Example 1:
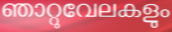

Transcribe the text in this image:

ഞാറ്റുവേലകളും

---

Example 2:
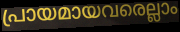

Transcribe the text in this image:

പ്രായമായവരെല്ലാം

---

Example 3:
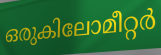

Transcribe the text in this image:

ഒരുകിലോമീറ്റർ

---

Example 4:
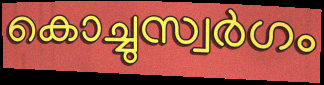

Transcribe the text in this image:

കൊച്ചുസ്വർഗം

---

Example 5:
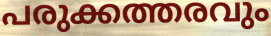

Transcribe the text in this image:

പരുക്കത്തരവും